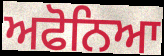
ਅਫੋਨਿਆ